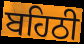
ਬਹਿਠੀ